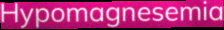
Hypomagnesemia